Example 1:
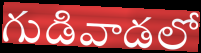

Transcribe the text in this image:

గుడివాడలో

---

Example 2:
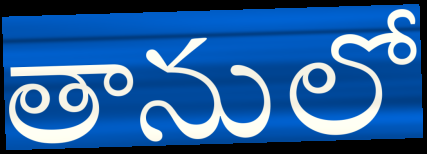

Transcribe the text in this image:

తానులో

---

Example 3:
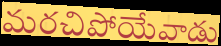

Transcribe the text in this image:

మరచిపోయేవాడు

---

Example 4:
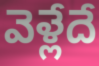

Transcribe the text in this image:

వెళ్లేదే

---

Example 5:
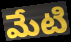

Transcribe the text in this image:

మేటి